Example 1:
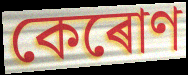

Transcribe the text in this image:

কেৰোণ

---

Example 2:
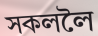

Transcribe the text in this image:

সকললৈ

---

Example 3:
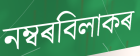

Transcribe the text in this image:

নম্বৰবিলাকৰ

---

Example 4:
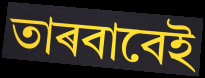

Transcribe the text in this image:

তাৰবাবেই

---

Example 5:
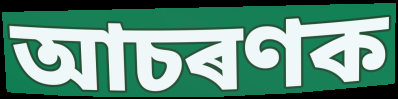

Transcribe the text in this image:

আচৰণক